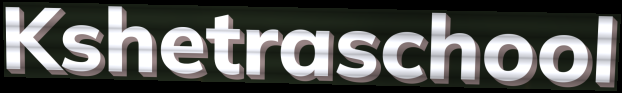
Kshetraschool